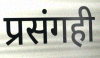
प्रसंगही